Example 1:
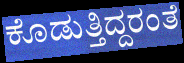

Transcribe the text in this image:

ಕೊಡುತ್ತಿದ್ದರಂತೆ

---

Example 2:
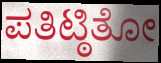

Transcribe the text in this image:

ಪತಿಟ್ಠಿತೋ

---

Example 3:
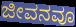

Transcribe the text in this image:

ಜೀವನವೂ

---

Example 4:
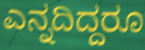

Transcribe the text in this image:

ಎನ್ನದಿದ್ದರೂ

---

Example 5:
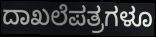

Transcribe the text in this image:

ದಾಖಲೆಪತ್ರಗಳೂ